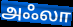
அஃலா